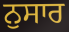
ਨੁਸਾਰ